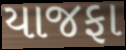
યાજફા